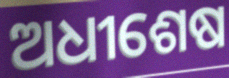
ଅଧୀଶେଷ